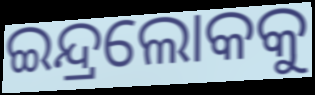
ଇନ୍ଦ୍ରଲୋକକୁ